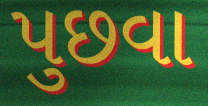
પુછવા